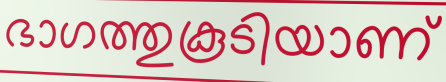
ഭാഗത്തുകൂടിയാണ്